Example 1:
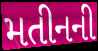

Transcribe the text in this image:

મતીનની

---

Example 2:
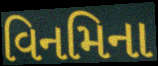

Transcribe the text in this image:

વિનમિના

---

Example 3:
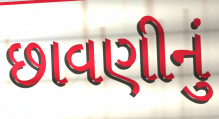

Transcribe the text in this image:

છાવણીનું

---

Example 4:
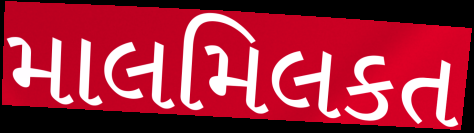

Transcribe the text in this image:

માલમિલકત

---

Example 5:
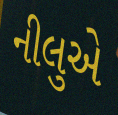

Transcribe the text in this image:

નીલુએ